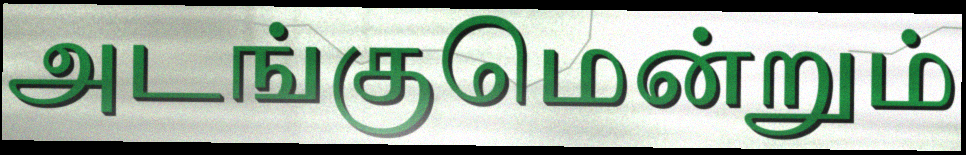
அடங்குமென்றும்